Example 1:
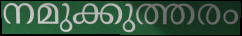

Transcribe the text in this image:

നമുക്കുത്തരം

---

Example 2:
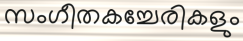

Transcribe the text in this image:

സംഗീതകച്ചേരികളും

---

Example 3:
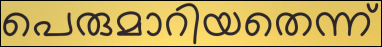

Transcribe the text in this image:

പെരുമാറിയതെന്ന്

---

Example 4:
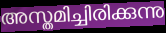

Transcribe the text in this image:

അസ്തമിച്ചിരിക്കുന്നു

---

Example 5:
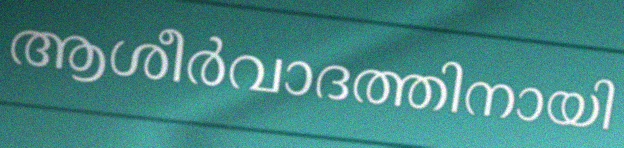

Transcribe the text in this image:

ആശീർവാദത്തിനായി